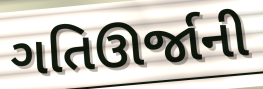
ગતિઊર્જાની